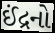
ઈંદ્રનો